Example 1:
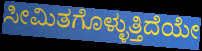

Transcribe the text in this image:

ಸೀಮಿತಗೊಳ್ಳುತ್ತಿದೆಯೇ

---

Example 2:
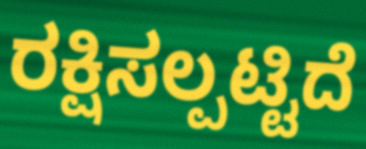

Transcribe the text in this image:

ರಕ್ಷಿಸಲ್ಪಟ್ಟಿದೆ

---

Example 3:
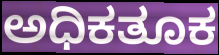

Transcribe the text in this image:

ಅಧಿಕತೂಕ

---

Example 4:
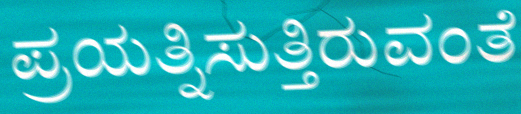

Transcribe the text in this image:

ಪ್ರಯತ್ನಿಸುತ್ತಿರುವಂತೆ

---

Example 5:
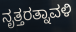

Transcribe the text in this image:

ನೃತ್ತರತ್ನಾವಳಿ